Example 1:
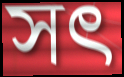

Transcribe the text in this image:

সৎ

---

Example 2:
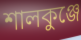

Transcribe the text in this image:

শালকুঞ্জে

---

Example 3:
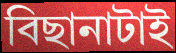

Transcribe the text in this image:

বিছানাটাই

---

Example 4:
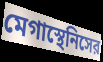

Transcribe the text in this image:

মেগাস্থেনিসের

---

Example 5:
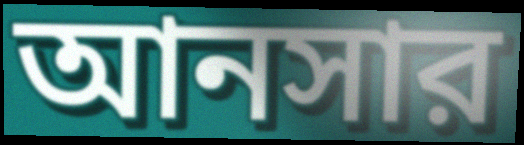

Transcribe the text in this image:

আনসার